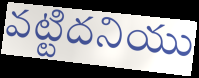
వట్టిదనియు